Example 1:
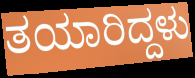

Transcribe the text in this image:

ತಯಾರಿದ್ದಳು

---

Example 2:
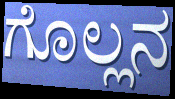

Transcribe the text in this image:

ಗೊಲ್ಲನ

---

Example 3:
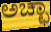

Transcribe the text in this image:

ಅಚ್ಛಾ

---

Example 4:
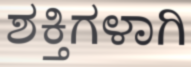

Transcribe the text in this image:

ಶಕ್ತಿಗಳಾಗಿ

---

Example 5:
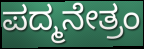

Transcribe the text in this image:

ಪದ್ಮನೇತ್ರಂ